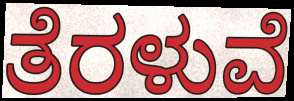
ತೆರಳುವೆ